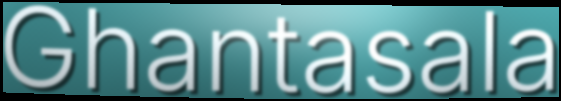
Ghantasala